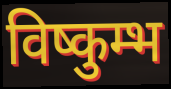
विष्कुम्भ